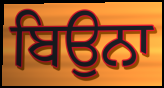
ਬਿਉਨਾ